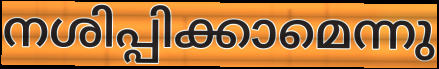
നശിപ്പിക്കാമെന്നു